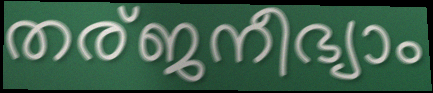
തര്ജനീഭ്യാം